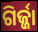
ଗିର୍ଜ୍ଜା